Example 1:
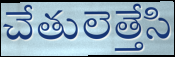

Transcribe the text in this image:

చేతులెత్తేసి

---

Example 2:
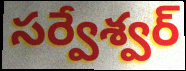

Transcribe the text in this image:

సర్వేశ్వర్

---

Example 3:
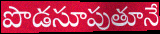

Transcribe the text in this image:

పొడసూపుతూనే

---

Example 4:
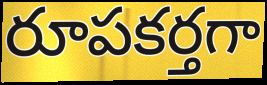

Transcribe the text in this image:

రూపకర్తగా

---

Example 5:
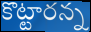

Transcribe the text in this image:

కొట్టారన్న